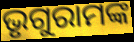
ଭୃଗୁରାମଙ୍କ